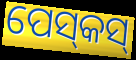
ପେସ୍‌କସ୍